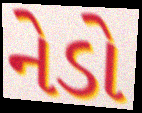
નેડો